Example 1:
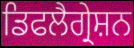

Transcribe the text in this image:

ਡਿਫਲੈਗ੍ਰੇਸ਼ਨ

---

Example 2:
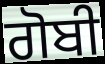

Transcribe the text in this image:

ਗੋਬੀ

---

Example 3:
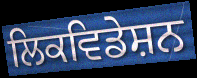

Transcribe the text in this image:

ਲਿਕਵਿਡੇਸ਼ਨ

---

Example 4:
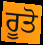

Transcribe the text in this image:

ਰੂਤੋ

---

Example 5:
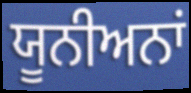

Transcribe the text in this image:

ਯੂਨੀਅਨਾਂ